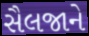
સૈલજાને